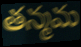
తన్మమ